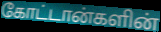
கோட்டான்களின்